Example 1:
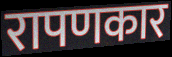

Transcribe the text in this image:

रापणकार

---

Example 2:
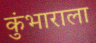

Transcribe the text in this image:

कुंभाराला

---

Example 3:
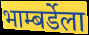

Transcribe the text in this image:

भाम्बर्डेला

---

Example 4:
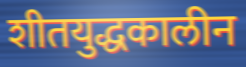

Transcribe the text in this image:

शीतयुद्धकालीन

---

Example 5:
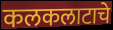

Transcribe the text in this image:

कलकलाटाचे